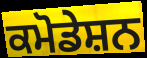
ਕਮੋਡੇਸ਼ਨ